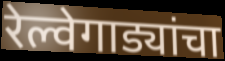
रेल्वेगाड्यांचा